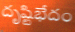
దృష్టిభేదం